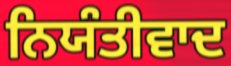
ਨਿਯੰਤੀਵਾਦ